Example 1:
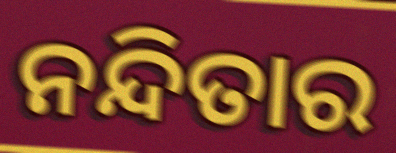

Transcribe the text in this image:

ନନ୍ଦିତାର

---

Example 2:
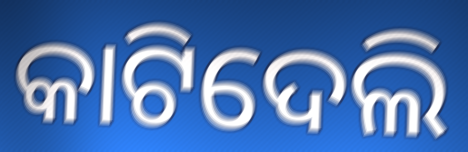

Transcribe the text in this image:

କାଟିଦେଲି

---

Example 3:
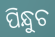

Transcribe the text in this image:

ପିନ୍ଧୁଚ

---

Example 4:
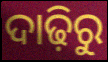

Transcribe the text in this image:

ଦାଢ଼ିରୁ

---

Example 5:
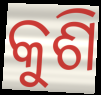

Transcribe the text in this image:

କୁଶି